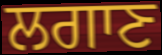
ਲਗਾਣ